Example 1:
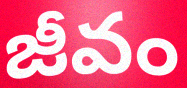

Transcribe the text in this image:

జీవం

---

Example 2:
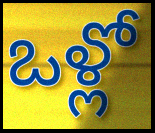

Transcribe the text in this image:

ఒళ్లో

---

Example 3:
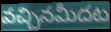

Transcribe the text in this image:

వచ్చినమీదట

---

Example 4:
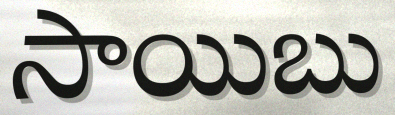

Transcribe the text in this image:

సాయిబు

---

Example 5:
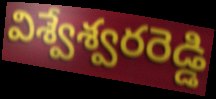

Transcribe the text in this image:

విశ్వేశ్వరరెడ్డి